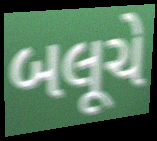
બલૂચે